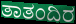
ತಾತಂದಿರ